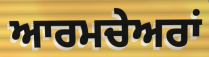
ਆਰਮਚੇਅਰਾਂ